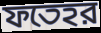
ফতেহর